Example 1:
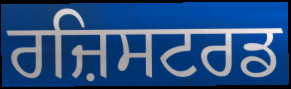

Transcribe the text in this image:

ਰਜ਼ਿਸਟਰਡ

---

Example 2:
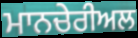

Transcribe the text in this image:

ਮਾਨਚੇਰੀਅਲ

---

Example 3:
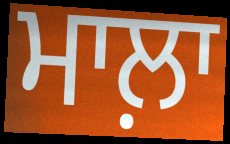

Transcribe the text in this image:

ਮਾਲ਼ਾ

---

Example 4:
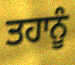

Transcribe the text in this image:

ਤਹਾਨੂੰ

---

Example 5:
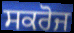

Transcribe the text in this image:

ਸਕਰੋਜ